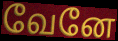
வேனே